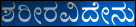
ಶರೀರವಿದೇನು